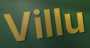
Villu